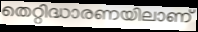
തെറ്റിദ്ധാരണയിലാണ്